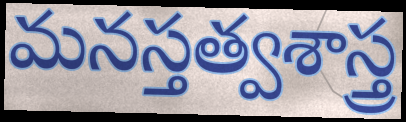
మనస్తత్వశాస్త్ర